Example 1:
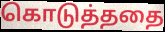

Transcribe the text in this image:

கொடுத்ததை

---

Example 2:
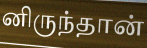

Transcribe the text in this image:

னிருந்தான்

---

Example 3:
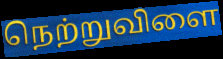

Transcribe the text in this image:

நெற்றுவிளை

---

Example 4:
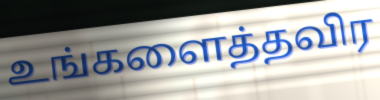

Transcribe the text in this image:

உங்களைத்தவிர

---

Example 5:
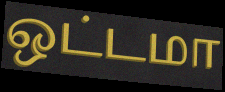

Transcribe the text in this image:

ஒட்டமா